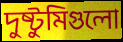
দুষ্টুমিগুলো